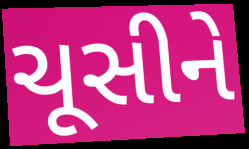
ચૂસીને